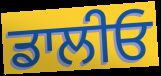
ਡਾਲੀਓ